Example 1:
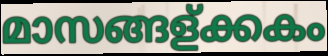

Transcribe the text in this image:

മാസങ്ങള്ക്കകം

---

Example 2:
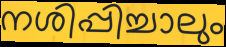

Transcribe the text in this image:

നശിപ്പിച്ചാലും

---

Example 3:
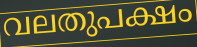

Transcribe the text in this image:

വലതുപക്ഷം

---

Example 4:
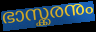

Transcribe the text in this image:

ഭാസ്ക്കരനും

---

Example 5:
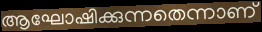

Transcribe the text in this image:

ആഘോഷിക്കുന്നതെന്നാണ്